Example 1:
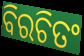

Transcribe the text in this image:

ବିରଚିତଂ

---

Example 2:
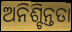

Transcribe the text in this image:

ଅନିଶ୍ଚିନ୍ତତା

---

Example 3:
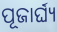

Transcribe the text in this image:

ପୂଜାର୍ଘ୍ୟ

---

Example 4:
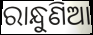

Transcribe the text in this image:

ରାନ୍ଧୁଣିଆ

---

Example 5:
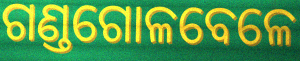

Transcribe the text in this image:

ଗଣ୍ଡଗୋଳବେଳେ